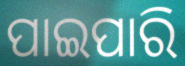
ପାଇପାରି